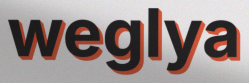
weglya